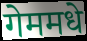
गेममधे